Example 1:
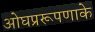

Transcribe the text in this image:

ओघप्ररूपणाके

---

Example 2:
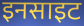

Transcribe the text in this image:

इनसाइट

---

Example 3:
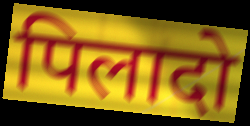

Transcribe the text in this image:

पिलादो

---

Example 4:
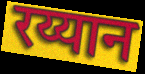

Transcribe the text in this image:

रय्यान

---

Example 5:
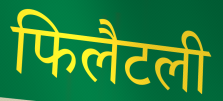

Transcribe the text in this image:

फिलैटली